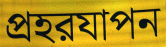
প্রহরযাপন